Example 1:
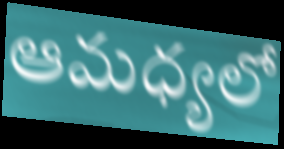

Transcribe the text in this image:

ఆమధ్యలో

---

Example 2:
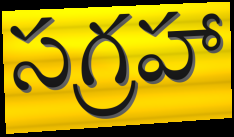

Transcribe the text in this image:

సగ్రహా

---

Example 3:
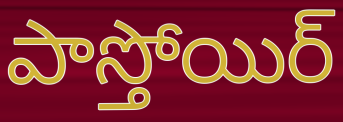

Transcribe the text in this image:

పాస్తోయిర్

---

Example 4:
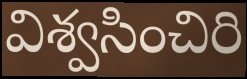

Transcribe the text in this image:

విశ్వసించిరి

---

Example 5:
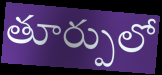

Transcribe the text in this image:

తూర్పులో